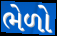
ભેળો